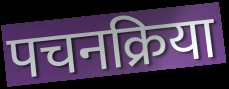
पचनक्रिया